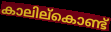
കാലില്കൊണ്ട്